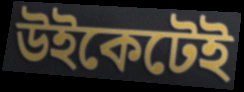
উইকেটেই